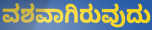
ವಶವಾಗಿರುವುದು